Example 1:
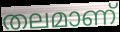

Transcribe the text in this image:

തലമാണ്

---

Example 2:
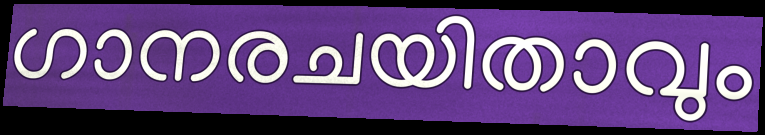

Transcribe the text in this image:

ഗാനരചയിതാവും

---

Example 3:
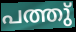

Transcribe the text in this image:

പത്തു്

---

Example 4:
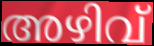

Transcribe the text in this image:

അഴിവ്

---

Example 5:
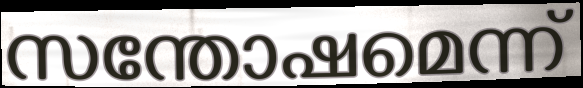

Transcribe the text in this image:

സന്തോഷമെന്ന്